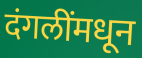
दंगलींमधून